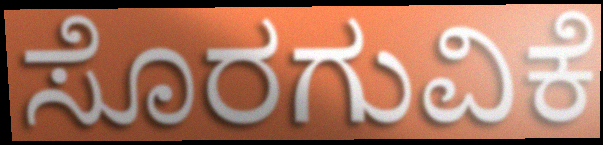
ಸೊರಗುವಿಕೆ